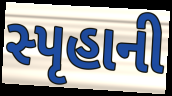
સ્પૃહાની